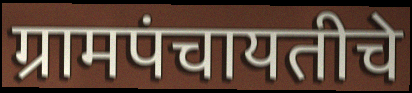
ग्रामपंचायतीचे